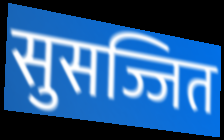
सुसज्जित